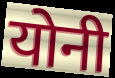
योनी